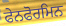
ਫੇਨਫੋਰਮਿਨ